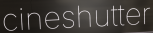
cineshutter